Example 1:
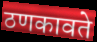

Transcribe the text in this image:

ठणकावते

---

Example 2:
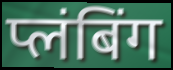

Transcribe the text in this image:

प्लंबिंग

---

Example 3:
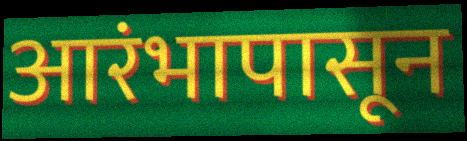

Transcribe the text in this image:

आरंभापासून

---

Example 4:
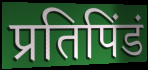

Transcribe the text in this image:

प्रतिपिंडं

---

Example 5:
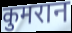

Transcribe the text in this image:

कुमरान